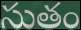
సుతం